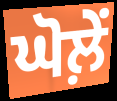
ਘੋਲ਼ੇਂ